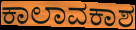
ಕಾಲಾವಕಾಶ